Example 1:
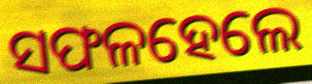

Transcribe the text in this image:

ସଫଳହେଲେ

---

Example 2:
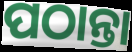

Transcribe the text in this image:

ପଠାନ୍ତା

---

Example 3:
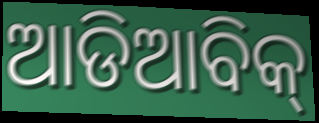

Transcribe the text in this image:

ଆଡିଆବିକ୍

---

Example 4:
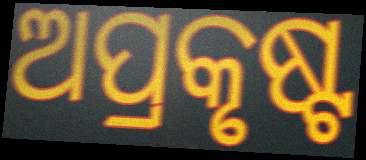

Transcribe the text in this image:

ଅପ୍ରକୃଷ୍ଟ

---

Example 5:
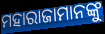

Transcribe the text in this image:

ମହାରାଜାମାନଙ୍କୁ